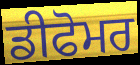
ਡੀਫੋਮਰ